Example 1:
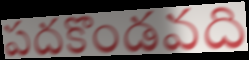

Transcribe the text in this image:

పదకొండవది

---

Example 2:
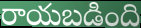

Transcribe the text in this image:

రాయబడింది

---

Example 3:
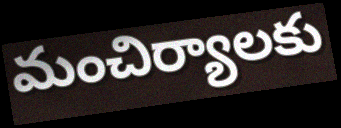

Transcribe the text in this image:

మంచిర్యాలకు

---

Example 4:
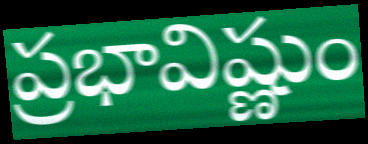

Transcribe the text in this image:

ప్రభావిష్ణుం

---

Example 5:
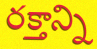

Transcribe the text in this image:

రక్తాన్ని